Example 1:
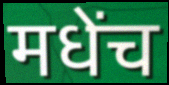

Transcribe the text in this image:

मधेंच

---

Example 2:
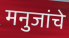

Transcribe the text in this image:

मनुजांचे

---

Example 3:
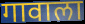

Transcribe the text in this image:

गावाला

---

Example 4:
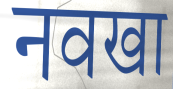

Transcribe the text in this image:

नवखा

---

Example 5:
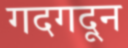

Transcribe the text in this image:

गदगदून